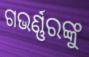
ଗଭର୍ଣ୍ଣରଙ୍କୁ